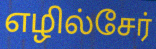
எழில்சேர்